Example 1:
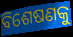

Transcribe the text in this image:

ବିଶେଷଣକୁ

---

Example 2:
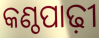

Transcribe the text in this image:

କଣ୍ଠପାଢ଼ୀ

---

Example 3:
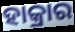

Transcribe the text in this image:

ହାକ୍ରାର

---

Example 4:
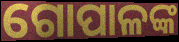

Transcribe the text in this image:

ଗୋପାଳଙ୍କ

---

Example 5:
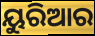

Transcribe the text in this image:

ୟୁରିଆର